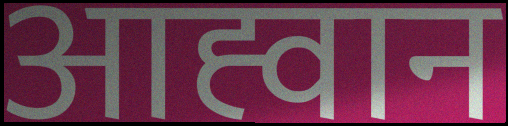
आह्वान